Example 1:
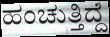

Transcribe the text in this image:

ಹಂಚುತ್ತಿದ್ದೆ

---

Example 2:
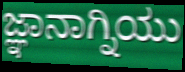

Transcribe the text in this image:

ಜ್ಞಾನಾಗ್ನಿಯು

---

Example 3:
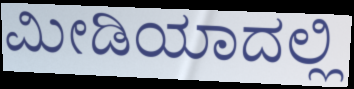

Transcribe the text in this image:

ಮೀಡಿಯಾದಲ್ಲಿ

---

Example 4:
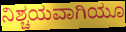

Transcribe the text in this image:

ನಿಶ್ಚಯವಾಗಿಯೂ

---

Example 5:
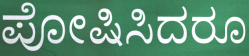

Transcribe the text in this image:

ಪೋಷಿಸಿದರೂ